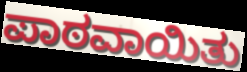
ಪಾಠವಾಯಿತು